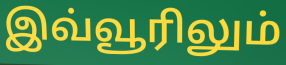
இவ்வூரிலும்